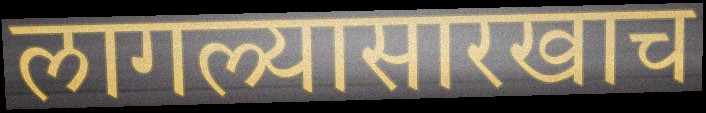
लागल्यासारखाच